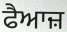
ਫੈਆਜ਼